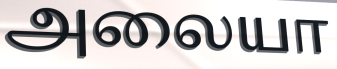
அலையா